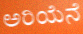
ಅರಿಯೆನೆ